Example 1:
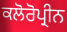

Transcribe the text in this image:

ਕਲੋਰੋਪ੍ਰੀਨ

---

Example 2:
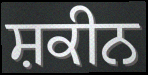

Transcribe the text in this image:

ਸ਼ਕੀਨ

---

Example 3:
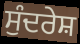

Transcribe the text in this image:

ਸੁੰਦਰੇਸ਼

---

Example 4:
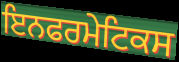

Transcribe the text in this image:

ਇਨਫਰਮੇਟਿਕਸ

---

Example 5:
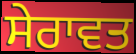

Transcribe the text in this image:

ਸੇਰਾਵਤ